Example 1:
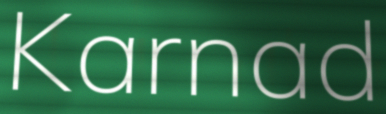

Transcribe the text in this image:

Karnad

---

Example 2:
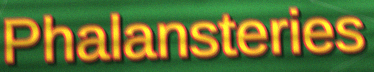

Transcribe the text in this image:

Phalansteries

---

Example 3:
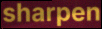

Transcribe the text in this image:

sharpen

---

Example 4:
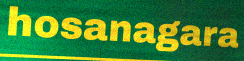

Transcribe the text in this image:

hosanagara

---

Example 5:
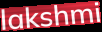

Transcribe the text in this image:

lakshmi